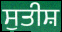
ਸੁਤੀਸ਼